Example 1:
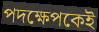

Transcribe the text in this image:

পদক্ষেপকেই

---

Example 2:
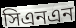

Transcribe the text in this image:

সিএনএন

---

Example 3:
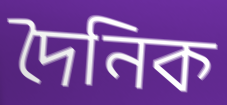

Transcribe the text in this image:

দৈনিক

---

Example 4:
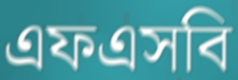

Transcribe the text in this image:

এফএসবি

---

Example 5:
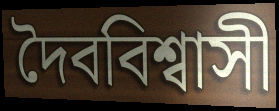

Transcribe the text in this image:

দৈববিশ্বাসী